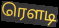
ரெளடி